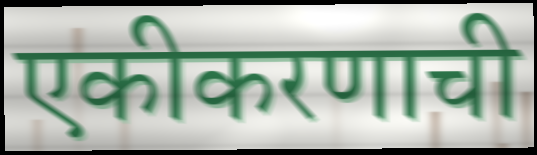
एकीकरणाची